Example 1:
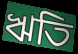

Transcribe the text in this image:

ঋতি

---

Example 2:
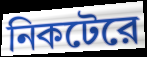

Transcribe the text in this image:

নিকটেরে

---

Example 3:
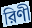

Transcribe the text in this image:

রিণী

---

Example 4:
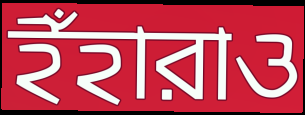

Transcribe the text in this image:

ইঁহারাও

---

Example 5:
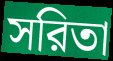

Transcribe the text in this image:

সরিতা